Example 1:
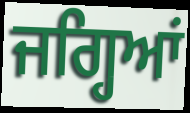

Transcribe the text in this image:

ਜਗ੍ਹਿਆਂ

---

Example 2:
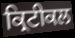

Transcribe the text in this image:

ਕ੍ਰਿਟੀਕਲ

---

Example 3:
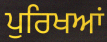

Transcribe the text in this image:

ਪੁਰਿਖਆਂ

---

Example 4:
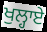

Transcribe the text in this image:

ਖੁਲ੍ਹਾਏ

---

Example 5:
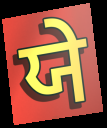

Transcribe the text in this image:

ਯੇ